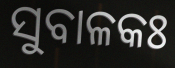
ସୁବାଳକଃ